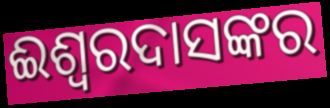
ଈଶ୍ଵରଦାସଙ୍କର